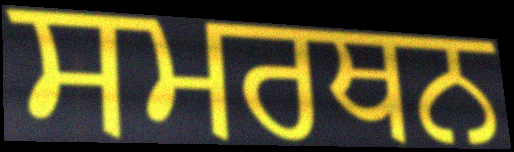
ਸਮਰਥਨ